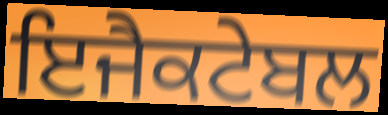
ਇਜੈਕਟੇਬਲ